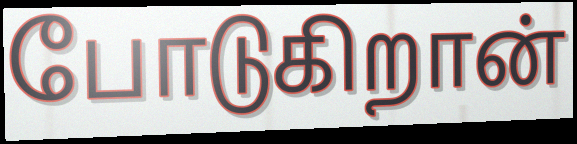
போடுகிறான்